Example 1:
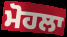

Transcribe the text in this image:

ਮੋਹਲਾ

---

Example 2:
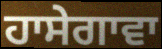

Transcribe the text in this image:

ਹਾਸੇਗਾਵਾ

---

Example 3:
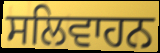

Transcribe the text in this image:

ਸਲਿਵਾਹਨ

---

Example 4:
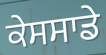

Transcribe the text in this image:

ਕੇਸਸਾਡੇ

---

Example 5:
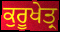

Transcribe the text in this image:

ਕੁਰੂਖੇਤ੍ਰ